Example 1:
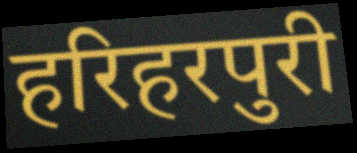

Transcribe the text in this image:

हरिहरपुरी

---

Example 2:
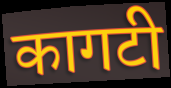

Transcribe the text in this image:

कागटी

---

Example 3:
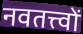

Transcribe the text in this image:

नवतत्त्वों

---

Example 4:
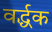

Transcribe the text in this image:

वर्द्धक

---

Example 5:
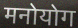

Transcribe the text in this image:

मनोयोग